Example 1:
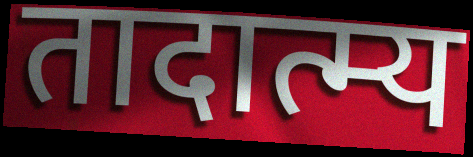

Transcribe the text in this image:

तादात्म्य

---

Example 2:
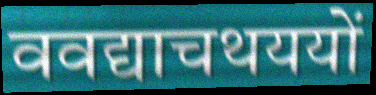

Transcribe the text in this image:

ववद्याचथययों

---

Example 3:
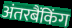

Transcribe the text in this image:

अंतरबैंकिंग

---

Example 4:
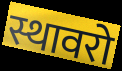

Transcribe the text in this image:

स्थावरो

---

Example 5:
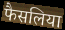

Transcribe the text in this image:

फैसलिया